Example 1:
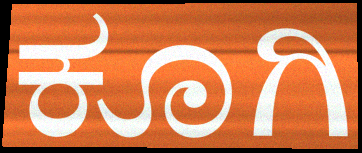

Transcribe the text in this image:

ಕೂಗಿ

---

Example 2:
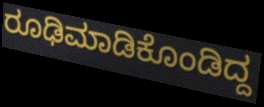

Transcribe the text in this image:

ರೂಢಿಮಾಡಿಕೊಂಡಿದ್ದ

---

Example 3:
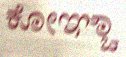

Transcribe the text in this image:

ಕೋಞ್ಚಾ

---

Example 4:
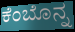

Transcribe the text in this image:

ಕೆಂಬೊನ್ನ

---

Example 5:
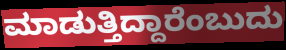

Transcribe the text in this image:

ಮಾಡುತ್ತಿದ್ದಾರೆಂಬುದು